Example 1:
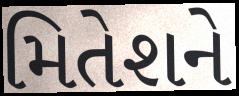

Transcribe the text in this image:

મિતેશને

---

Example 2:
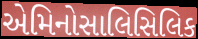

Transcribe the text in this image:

એમિનોસાલિસિલિક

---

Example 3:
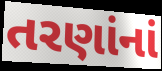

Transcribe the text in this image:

તરણાંનાં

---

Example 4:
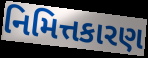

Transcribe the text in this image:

નિમિત્તકારણ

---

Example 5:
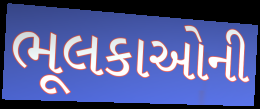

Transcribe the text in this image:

ભૂલકાઓની